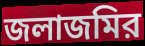
জলাজমির